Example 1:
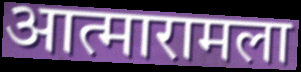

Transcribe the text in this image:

आत्मारामला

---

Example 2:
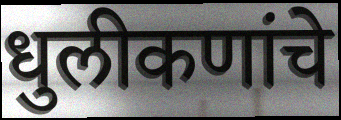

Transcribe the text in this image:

धुलीकणांचे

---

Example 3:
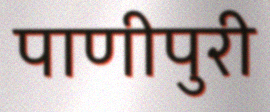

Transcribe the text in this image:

पाणीपुरी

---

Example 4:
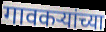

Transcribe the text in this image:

गावकर्‍यांच्या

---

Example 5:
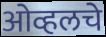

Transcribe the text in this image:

ओव्हलचे